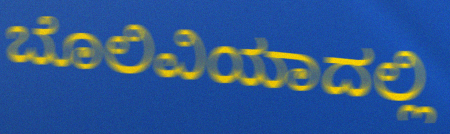
ಬೊಲಿವಿಯಾದಲ್ಲಿ